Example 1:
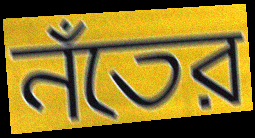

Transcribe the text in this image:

নঁতের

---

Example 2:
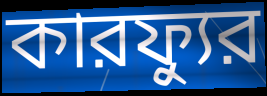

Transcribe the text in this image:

কারফ্যুর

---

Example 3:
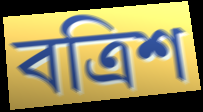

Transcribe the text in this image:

বত্রিশ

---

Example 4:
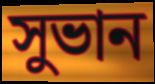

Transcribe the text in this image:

সুভান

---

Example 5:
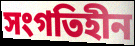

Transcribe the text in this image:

সংগতিহীন